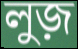
লুজ়